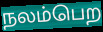
நலம்பெற